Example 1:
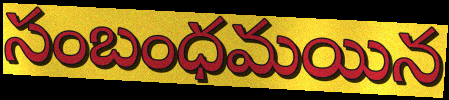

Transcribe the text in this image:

సంబంధమయిన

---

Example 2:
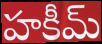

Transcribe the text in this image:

హకీమ్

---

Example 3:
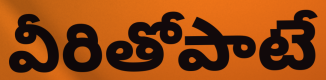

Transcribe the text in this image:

వీరితోపాటే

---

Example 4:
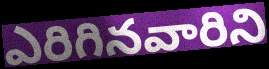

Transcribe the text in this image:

ఎరిగినవారిని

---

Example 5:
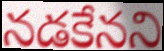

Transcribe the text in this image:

నడకేనని